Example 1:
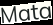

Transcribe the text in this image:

Mata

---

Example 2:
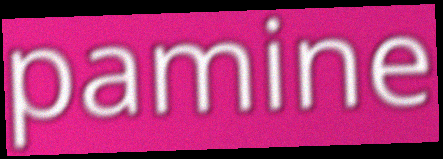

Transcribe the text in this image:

pamine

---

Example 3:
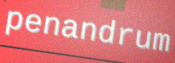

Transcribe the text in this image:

penandrum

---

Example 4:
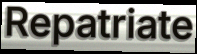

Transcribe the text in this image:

Repatriate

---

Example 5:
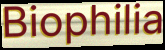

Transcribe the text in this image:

Biophilia